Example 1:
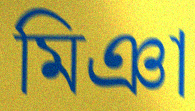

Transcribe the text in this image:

মিঞা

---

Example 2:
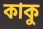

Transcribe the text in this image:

কাকু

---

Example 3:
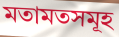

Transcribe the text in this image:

মতামতসমূহ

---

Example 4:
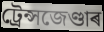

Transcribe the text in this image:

ট্ৰেন্সজেণ্ডাৰ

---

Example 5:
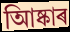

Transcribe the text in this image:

আিষ্কাৰ